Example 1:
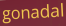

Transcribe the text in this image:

gonadal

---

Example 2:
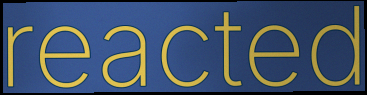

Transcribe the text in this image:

reacted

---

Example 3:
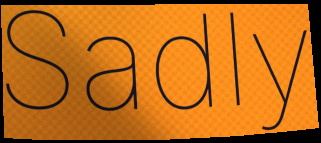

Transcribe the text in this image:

Sadly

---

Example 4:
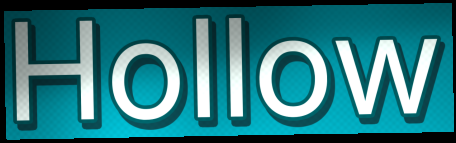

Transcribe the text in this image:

Hollow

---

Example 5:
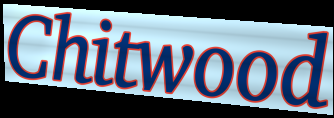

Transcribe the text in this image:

Chitwood